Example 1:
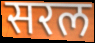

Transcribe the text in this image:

सरल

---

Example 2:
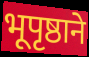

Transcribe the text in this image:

भूपृष्ठाने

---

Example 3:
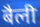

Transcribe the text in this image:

बैली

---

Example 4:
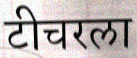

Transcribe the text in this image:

टीचरला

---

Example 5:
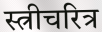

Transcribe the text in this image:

स्त्रीचरित्र